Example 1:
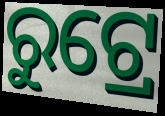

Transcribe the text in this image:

ରୁଟ୍ରେ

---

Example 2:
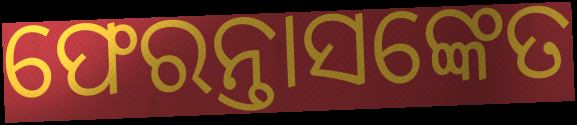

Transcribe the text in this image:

ଫେରନ୍ତାସଙ୍କେତ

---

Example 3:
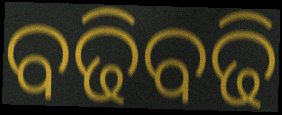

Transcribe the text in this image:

ବଢିବଢି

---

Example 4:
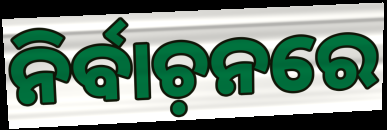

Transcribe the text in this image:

ନିର୍ବାଚ଼ନରେ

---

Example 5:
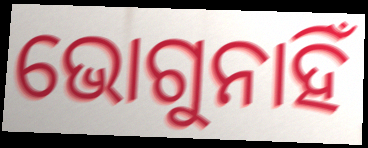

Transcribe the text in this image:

ଭୋଗୁନାହିଁ